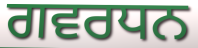
ਗਵਰਧਨ